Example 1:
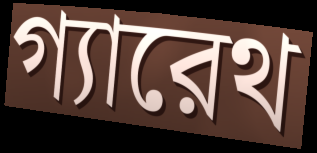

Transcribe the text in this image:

গ্যারেথ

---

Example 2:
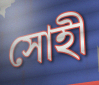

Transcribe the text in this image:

সোহী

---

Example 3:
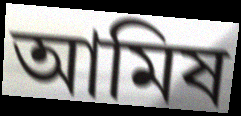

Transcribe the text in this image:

আমিষ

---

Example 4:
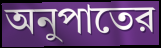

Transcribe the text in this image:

অনুপাতের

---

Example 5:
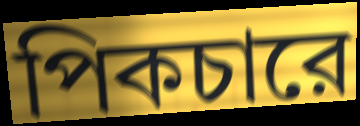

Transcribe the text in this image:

পিকচারে